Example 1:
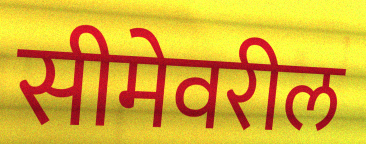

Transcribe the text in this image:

सीमेवरील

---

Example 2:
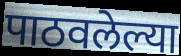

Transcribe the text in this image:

पाठवलेल्या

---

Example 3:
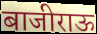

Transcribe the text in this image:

बाजीराऊ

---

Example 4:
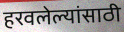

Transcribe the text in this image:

हरवलेल्यांसाठी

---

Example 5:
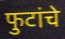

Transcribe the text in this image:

फुटांचे